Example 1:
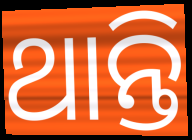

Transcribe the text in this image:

ଥାନ୍ତି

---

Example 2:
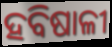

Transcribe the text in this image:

ହବିଷାଳୀ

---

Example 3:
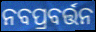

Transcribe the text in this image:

ନବପ୍ରବର୍ତ୍ତନ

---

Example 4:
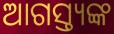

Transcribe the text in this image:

ଆଗସ୍ତ୍ୟଙ୍କ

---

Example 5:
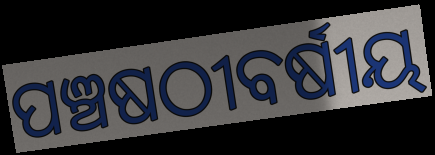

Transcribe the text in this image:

ପଞ୍ଚଷଠୀବର୍ଷୀୟ